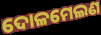
ଦୋଳମେଲଣ